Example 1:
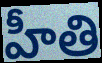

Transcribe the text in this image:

హీతి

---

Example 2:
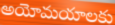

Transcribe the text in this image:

అయోమయాలకు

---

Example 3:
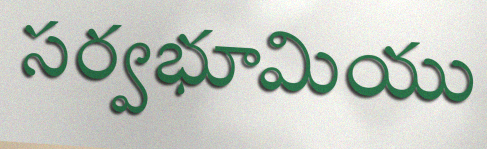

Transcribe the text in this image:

సర్వభూమియు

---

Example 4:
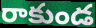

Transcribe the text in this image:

రాకుండ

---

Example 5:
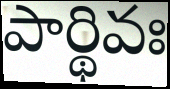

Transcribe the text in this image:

పార్థివః